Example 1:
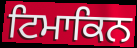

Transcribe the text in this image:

ਟਿਮਾਕਿਨ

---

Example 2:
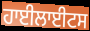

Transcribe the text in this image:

ਹਾਈਲਾਈਟਸ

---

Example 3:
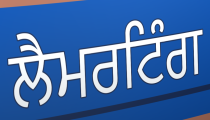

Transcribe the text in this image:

ਲੈਮਰਟਿੰਗ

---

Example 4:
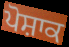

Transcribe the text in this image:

ਪੋਸ਼ਾਕ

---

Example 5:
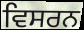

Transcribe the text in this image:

ਵਿਸਰਨ